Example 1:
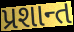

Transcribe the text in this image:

પ્રશાન્ત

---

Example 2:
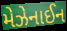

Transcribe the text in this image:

મેઝેનાઈન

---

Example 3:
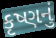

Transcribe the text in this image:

કૃષ્ણનું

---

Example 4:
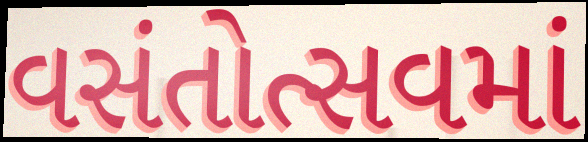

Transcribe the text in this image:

વસંતોત્સવમાં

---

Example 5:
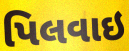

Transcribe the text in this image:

પિલવાઇ